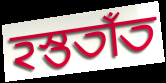
হস্ততাঁত